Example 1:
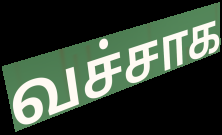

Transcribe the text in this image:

வச்சாக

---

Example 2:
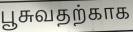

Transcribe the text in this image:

பூசுவதற்காக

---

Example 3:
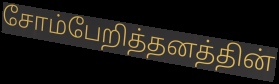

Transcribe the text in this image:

சோம்பேறித்தனத்தின்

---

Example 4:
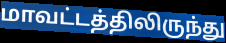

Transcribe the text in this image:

மாவட்டத்திலிருந்து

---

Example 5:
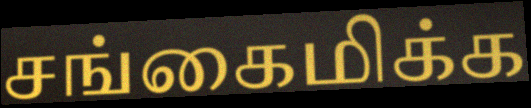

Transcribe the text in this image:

சங்கைமிக்க